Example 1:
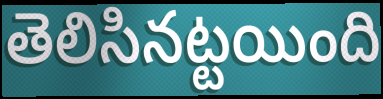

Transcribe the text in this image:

తెలిసినట్టయింది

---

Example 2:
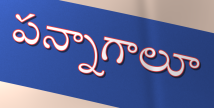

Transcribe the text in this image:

పన్నాగాలూ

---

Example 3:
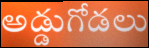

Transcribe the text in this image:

అడ్డుగోడలు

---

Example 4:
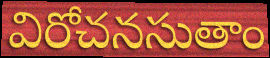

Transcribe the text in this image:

విరోచనసుతాం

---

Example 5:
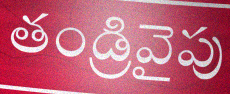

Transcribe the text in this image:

తండ్రివైపు